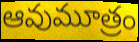
ఆవుమూత్రం